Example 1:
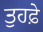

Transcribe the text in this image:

ਤੁਹਫ਼ੇ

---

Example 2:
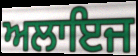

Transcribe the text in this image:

ਅਲਾਇਜ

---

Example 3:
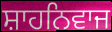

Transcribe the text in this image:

ਸ਼ਾਹਨਿਵਾਜ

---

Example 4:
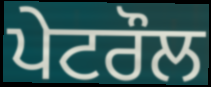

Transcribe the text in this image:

ਪੇਟਰੌਲ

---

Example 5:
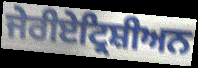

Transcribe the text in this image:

ਜੇਰੀਏਟ੍ਰਿਸ਼ੀਅਨ